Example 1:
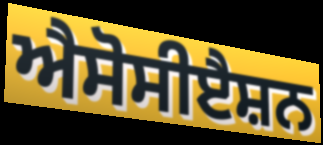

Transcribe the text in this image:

ਐਸੋਸੀੲੈਸ਼ਨ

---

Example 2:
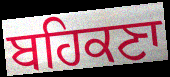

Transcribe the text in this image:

ਬਹਿਕਣਾ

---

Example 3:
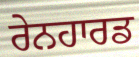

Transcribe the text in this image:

ਰੇਨਹਾਰਡ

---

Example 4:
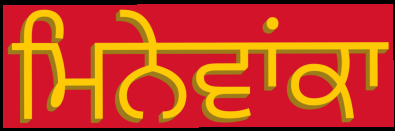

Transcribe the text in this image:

ਮਿਨੇਵਾਂਕਾ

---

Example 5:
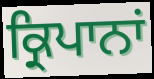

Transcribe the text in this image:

ਕ੍ਰਿਪਾਨਾਂ